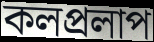
কলপ্রলাপ